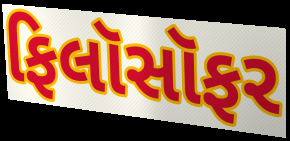
ફિલૉસૉફર